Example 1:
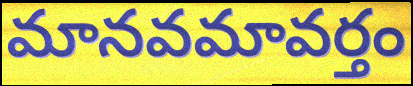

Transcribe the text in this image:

మానవమావర్తం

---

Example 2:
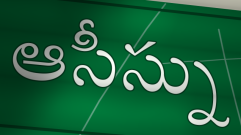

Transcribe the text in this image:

ఆసీస్ను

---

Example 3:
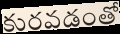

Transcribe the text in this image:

కురవడంతో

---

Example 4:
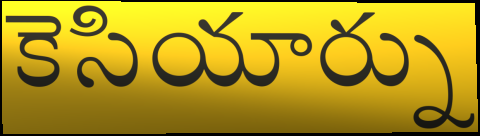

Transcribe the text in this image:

కెసియార్ను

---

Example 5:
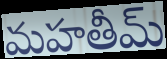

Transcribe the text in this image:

మహతీమ్